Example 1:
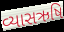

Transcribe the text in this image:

વ્યાસઋષિ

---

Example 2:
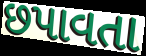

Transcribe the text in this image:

છપાવતા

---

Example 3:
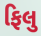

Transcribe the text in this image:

ફિલુ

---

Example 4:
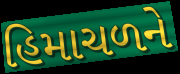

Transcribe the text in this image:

હિમાચળને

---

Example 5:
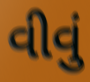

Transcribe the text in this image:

વીવું